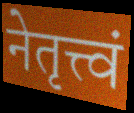
नेतृत्त्वं